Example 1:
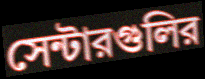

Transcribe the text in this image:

সেন্টারগুলির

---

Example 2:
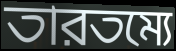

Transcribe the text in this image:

তারতম্যে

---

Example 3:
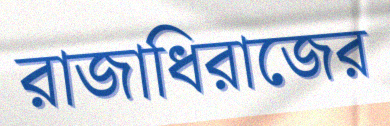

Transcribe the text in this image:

রাজাধিরাজের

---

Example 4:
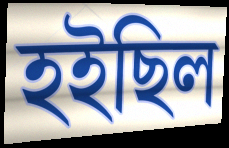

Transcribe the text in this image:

হইছিল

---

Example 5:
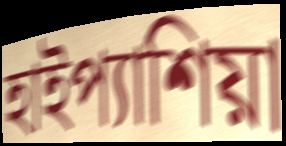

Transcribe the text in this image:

হাইপ্যাশিয়া